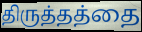
திருத்தத்தை